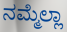
ನಮ್ಮೆಲ್ಲಾ